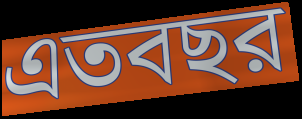
এতবছর